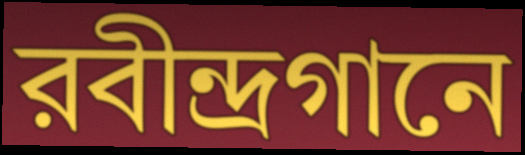
রবীন্দ্রগানে